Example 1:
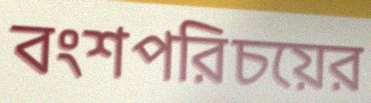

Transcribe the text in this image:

বংশপরিচয়ের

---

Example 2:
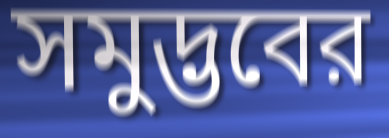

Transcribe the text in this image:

সমুদ্ভবের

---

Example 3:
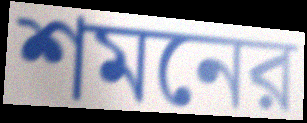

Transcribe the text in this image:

শমনের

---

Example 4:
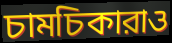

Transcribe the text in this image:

চামচিকারাও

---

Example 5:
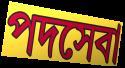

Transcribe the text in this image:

পদসেবা